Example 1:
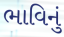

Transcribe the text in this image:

ભાવિનું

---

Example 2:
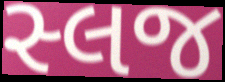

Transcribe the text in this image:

સ્લજ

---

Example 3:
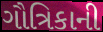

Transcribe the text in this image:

ગૌત્રિકાની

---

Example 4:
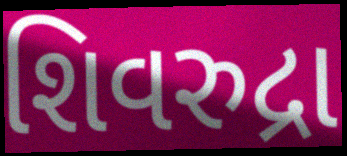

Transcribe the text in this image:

શિવરુદ્રા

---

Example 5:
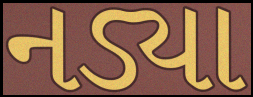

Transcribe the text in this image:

નડ્યા